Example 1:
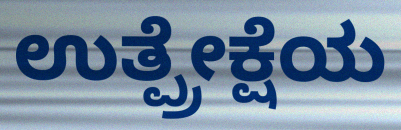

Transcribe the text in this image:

ಉತ್ಪ್ರೇಕ್ಷೆಯ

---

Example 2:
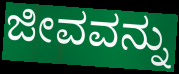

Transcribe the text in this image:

ಜೀವವನ್ನು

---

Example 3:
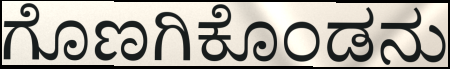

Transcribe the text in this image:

ಗೊಣಗಿಕೊಂಡನು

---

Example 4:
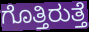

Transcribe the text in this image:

ಗೊತ್ತಿರುತ್ತೆ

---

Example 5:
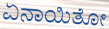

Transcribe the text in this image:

ಏನಾಯಿತೋ